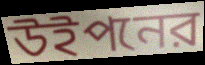
উইপনের